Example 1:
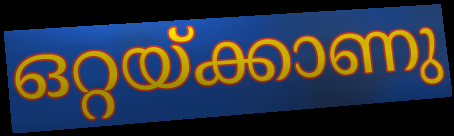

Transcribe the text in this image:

ഒറ്റയ്ക്കാണു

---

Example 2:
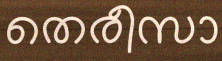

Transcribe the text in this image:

തെരീസാ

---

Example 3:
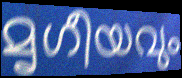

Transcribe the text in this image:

മൃഗീയവും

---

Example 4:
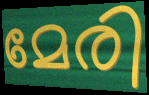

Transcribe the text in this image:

മേരി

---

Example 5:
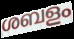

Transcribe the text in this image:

ശബളം